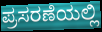
ಪ್ರಸರಣೆಯಲ್ಲಿ